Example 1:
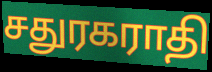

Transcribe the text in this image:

சதுரகராதி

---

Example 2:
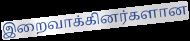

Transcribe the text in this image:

இறைவாக்கினர்களான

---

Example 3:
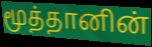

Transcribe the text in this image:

மூத்தானின்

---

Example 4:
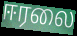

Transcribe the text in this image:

ஈரலை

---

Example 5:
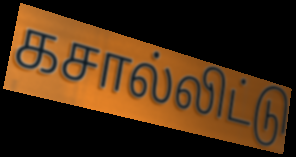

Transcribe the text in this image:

கசால்லிட்டு